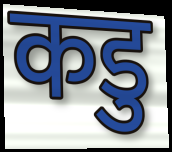
कडु